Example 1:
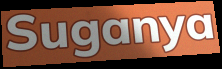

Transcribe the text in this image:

Suganya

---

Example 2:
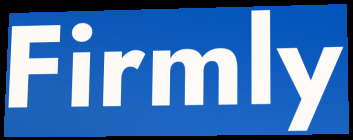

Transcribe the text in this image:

Firmly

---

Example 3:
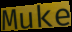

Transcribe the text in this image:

Muke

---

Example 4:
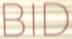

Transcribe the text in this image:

BID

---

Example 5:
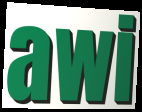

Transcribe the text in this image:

awi